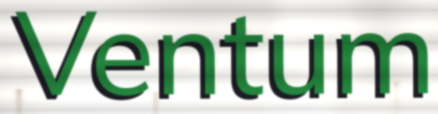
Ventum